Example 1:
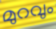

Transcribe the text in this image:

മുറവും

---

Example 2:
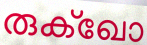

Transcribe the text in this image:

രുക്ഖോ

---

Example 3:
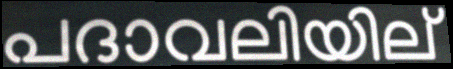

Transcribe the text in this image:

പദാവലിയില്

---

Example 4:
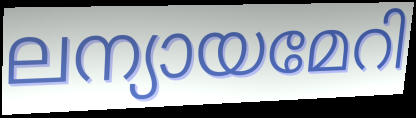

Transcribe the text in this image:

ലന്യായമേറി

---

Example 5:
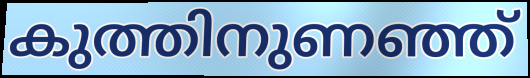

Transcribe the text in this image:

കുത്തിനുണഞ്ഞ്